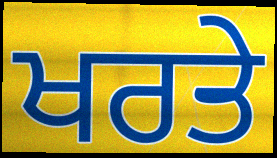
ਖਰਤੇ